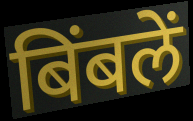
बिंबलें